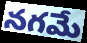
నగమే